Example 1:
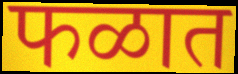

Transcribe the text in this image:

फळात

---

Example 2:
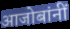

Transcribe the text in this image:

आजोबांनीं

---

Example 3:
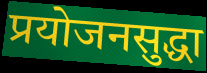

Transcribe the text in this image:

प्रयोजनसुद्धा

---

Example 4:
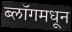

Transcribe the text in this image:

ब्लॉगमधून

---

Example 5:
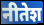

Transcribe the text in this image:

नीतेश